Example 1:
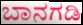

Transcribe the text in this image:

ಬಾನಗಡಿ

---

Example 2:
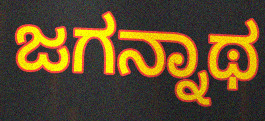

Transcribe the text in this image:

ಜಗನ್ನಾಥ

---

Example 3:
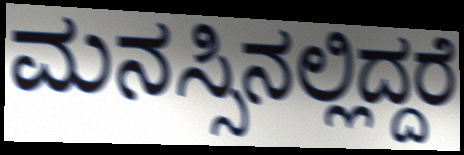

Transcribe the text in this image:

ಮನಸ್ಸಿನಲ್ಲಿದ್ದರೆ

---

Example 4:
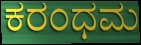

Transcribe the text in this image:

ಕರಂಧಮ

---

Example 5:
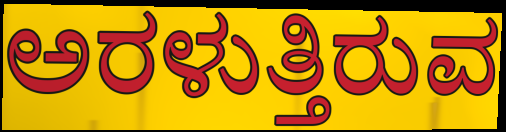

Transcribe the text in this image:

ಅರಳುತ್ತಿರುವ